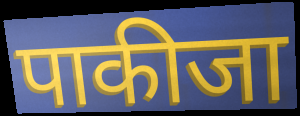
पाकीजा